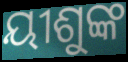
ୟୀଶୁଙ୍କ